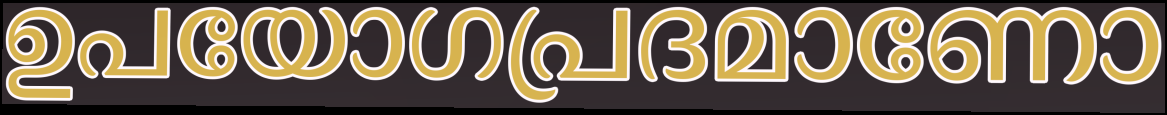
ഉപയോഗപ്രദമാണോ